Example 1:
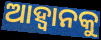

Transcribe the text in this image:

ଆହ୍ବାନକୁ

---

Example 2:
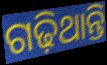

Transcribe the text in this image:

ଗଢ଼ିଥାନ୍ତି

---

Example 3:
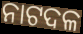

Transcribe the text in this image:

ନାଟଦଳ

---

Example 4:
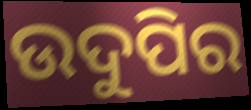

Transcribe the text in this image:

ଉଦୁପିର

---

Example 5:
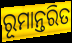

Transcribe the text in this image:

ରୂମାନ୍ତରିତ